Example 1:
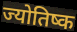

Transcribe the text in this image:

ज्योतिष्क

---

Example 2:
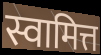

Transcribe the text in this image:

स्वामित्त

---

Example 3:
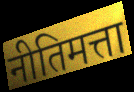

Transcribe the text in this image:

नीतिमत्ता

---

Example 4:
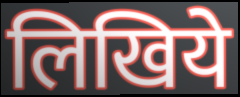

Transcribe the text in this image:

लिखिये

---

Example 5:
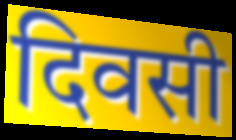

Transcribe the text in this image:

दिवसी